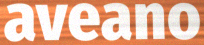
aveano